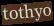
tothyo